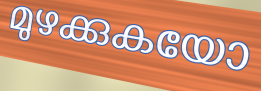
മുഴക്കുകയോ